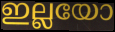
ഇല്ലയോ